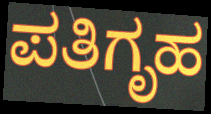
ಪತಿಗೃಹ